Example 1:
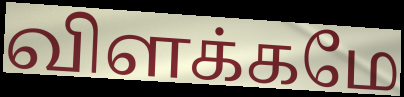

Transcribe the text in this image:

விளக்கமே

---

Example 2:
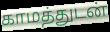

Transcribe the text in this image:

காமத்துடன்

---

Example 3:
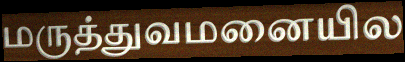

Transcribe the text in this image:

மருத்துவமனையில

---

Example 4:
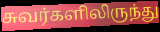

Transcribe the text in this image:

சுவர்களிலிருந்து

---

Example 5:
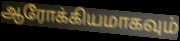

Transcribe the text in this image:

ஆரோக்கியமாகவும்